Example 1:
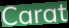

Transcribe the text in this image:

Carat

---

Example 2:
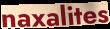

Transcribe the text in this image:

naxalites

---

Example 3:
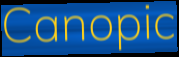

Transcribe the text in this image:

Canopic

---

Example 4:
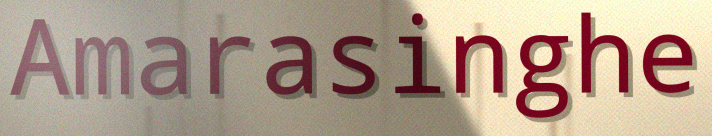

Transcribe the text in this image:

Amarasinghe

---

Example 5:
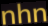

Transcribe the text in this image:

nhn